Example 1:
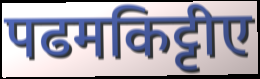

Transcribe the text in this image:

पढमकिट्टीए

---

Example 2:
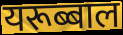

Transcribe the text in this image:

यरूब्बाल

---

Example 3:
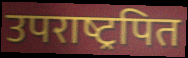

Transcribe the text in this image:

उपराष्ट्रपित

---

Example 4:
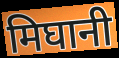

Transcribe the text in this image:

मिघानी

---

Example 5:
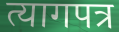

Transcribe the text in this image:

त्‍यागपत्र